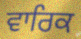
ਵਾਰਿਕ